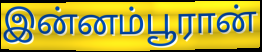
இன்னம்பூரான்